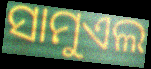
ସାମୁଏଲ